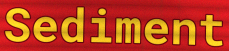
Sediment